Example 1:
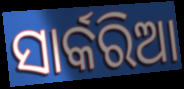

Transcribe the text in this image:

ସାର୍କରିଆ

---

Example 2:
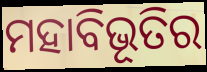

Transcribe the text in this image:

ମହାବିଭୂତିର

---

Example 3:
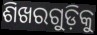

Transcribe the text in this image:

ଶିଖରଗୁଡ଼ିକୁ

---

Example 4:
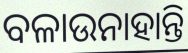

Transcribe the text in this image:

ବଳାଉନାହାନ୍ତି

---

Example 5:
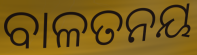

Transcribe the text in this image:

ବାଳତନୟ